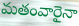
మతంవారైనా